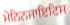
ਮੇਨਿਨਜਾਇਟਿਸ